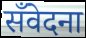
सँवेदना